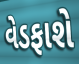
વેડફાશે